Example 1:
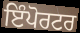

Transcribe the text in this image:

ਇੰਪੋਰਟਰ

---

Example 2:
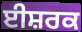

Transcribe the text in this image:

ਈਸ਼ਰਕ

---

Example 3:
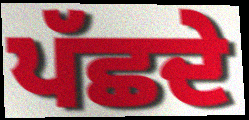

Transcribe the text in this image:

ਪੱਛਦੇ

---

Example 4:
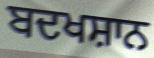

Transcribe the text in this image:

ਬਦਖਸ਼ਾਨ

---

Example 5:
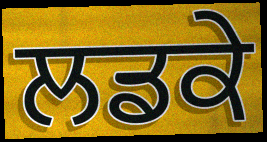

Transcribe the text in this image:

ਲਡਕੇ